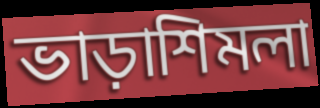
ভাড়াশিমলা